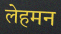
लेहमन